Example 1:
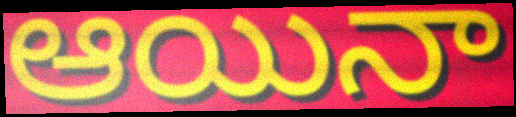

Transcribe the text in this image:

ఆయినా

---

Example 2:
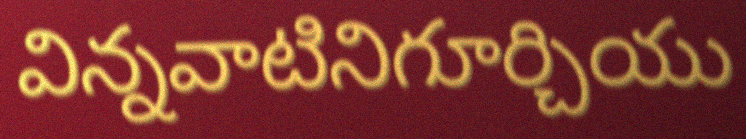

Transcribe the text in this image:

విన్నవాటినిగూర్చియు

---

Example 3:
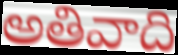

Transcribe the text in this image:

అతివాది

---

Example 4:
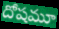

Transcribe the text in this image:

దోషమూ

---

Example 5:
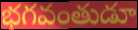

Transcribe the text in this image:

భగవంతుడూ